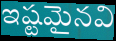
ఇష్టమైనవి